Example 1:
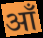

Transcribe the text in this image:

आँ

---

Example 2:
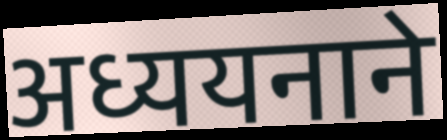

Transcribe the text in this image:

अध्ययनाने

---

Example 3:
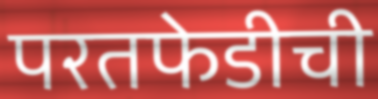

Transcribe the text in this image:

परतफेडीची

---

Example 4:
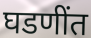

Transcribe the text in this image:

घडणींत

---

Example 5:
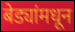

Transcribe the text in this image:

बेड्यांमधून